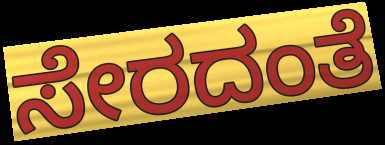
ಸೇರದಂತೆ